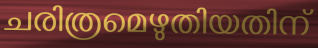
ചരിത്രമെഴുതിയതിന്